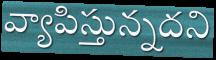
వ్యాపిస్తున్నదని